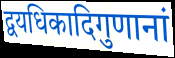
द्वयधिकादिगुणानां